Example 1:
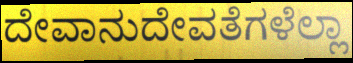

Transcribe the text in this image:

ದೇವಾನುದೇವತೆಗಳೆಲ್ಲಾ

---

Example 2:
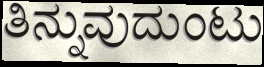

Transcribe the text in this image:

ತಿನ್ನುವುದುಂಟು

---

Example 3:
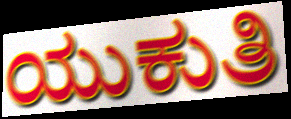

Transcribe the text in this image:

ಯುಕುತಿ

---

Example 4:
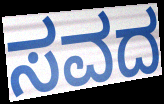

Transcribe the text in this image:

ಸವದ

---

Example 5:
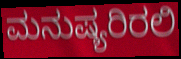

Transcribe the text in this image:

ಮನುಷ್ಯರಿರಲಿ